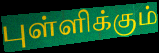
புள்ளிக்கும்